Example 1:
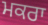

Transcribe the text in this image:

ਮਕਰਾ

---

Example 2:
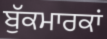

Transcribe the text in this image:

ਬੁੱਕਮਾਰਕਾਂ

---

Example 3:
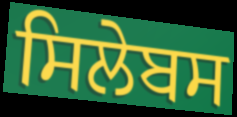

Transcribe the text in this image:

ਸਿਲੇਬਸ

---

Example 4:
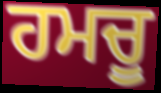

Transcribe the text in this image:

ਹਮਚੂ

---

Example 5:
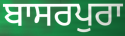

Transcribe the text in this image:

ਬਾਸਰਪੁਰਾ